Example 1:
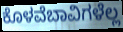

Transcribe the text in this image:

ಕೊಳವೆಬಾವಿಗಳೆಲ್ಲ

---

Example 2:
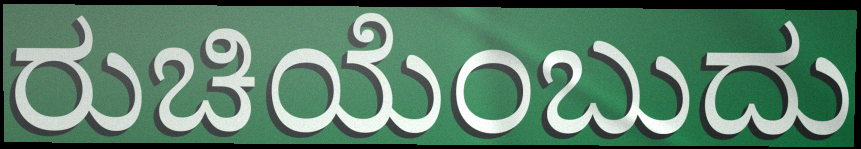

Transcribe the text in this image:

ರುಚಿಯೆಂಬುದು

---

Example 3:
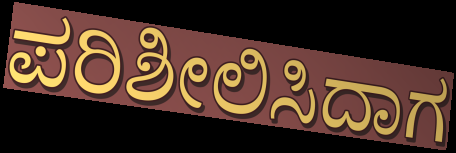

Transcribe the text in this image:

ಪರಿಶೀಲಿಸಿದಾಗ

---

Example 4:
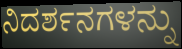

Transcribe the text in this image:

ನಿದರ್ಶನಗಳನ್ನು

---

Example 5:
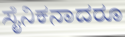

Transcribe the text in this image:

ಸೈನಿಕನಾದರೂ